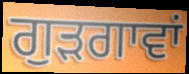
ਗੁੜਗਾਵਾਂ